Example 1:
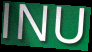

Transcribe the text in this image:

INU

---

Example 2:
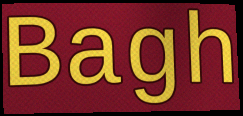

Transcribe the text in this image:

Bagh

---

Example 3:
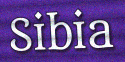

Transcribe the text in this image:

Sibia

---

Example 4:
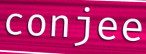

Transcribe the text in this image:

conjee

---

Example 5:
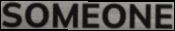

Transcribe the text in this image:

SOMEONE